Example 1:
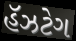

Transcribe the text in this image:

હૅઝટેગ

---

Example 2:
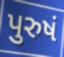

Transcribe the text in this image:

પુરુષં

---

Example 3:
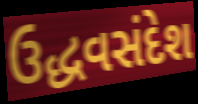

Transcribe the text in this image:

ઉદ્ધવસંદેશ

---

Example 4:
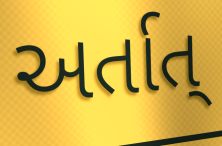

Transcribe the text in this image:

અર્તાત્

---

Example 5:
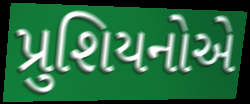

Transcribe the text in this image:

પ્રુશિયનોએ